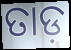
ତାଡ଼